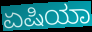
ಏಷಿಯಾ